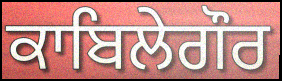
ਕਾਬਿਲੇਗੌਰ